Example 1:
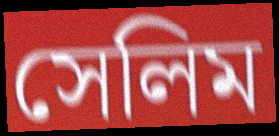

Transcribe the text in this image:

সেলিম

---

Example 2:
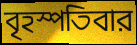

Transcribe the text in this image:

বৃহস্পতিবার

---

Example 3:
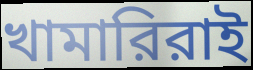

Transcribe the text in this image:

খামারিরাই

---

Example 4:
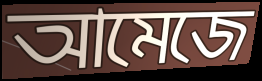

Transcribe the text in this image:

আমেজে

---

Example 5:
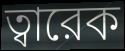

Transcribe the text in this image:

ত্বারেক